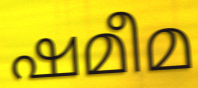
ഷമീമ